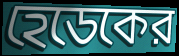
হেডেকের